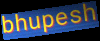
bhupesh